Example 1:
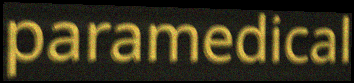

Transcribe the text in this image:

paramedical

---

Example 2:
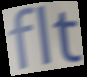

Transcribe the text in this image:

flt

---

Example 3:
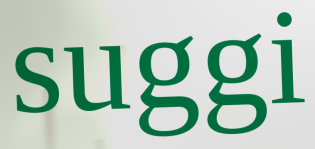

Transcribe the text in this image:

suggi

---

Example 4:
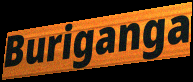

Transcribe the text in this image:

Buriganga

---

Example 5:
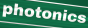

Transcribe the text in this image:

photonics